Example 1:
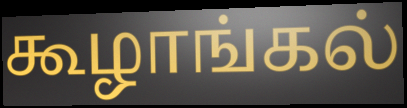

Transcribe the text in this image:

கூழாங்கல்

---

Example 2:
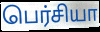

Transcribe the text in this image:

பெர்சியா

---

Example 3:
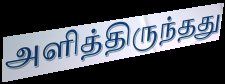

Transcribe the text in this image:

அளித்திருந்தது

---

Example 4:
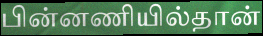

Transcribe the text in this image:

பின்னணியில்தான்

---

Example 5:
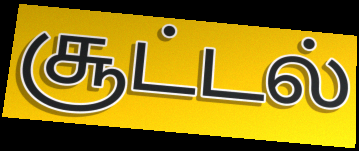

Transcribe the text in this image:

சூட்டல்